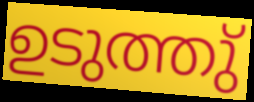
ഉടുത്തു്